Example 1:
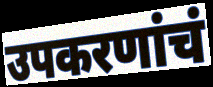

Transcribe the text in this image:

उपकरणांचं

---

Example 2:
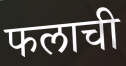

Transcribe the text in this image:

फलाची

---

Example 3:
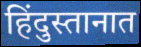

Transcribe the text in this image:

हिंदुस्तानात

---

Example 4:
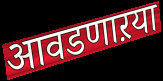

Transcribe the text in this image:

आवडणाऱया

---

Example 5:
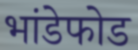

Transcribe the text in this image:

भांडेफोड